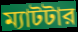
ম্যাটটার